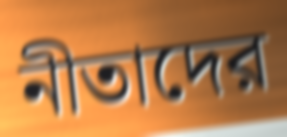
নীতাদের